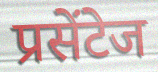
प्रसेंटेज